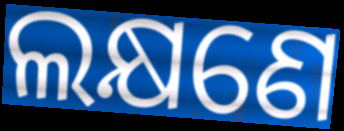
ଲକ୍ଷଣେ